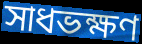
সাধভক্ষণ